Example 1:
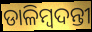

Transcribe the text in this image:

ଡାଳିମ୍ବଦନ୍ତୀ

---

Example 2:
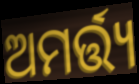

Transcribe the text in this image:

ଅମର୍ତ୍ତ୍ୟ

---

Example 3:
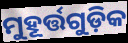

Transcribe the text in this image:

ମୁହୂର୍ତ୍ତଗୁଡ଼ିକ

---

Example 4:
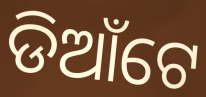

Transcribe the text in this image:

ଡିଆଁଟେ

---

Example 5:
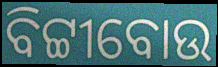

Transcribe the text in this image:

ବିଟ୍ଟୀବୋଉ